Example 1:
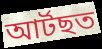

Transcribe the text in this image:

আৰ্টছত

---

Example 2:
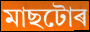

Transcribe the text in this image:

মাছটোৰ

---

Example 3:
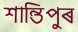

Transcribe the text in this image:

শান্তিপুৰ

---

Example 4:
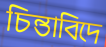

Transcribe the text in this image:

চিন্তাবিদে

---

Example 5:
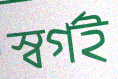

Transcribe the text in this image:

স্বৰ্গই